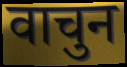
वाचुन